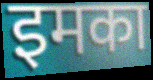
इमका